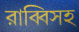
রাব্বিসহ